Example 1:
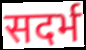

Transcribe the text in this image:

सदर्भ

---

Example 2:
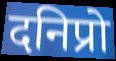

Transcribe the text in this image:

दनिप्रो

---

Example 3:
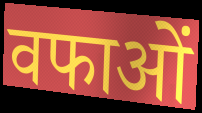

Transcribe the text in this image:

वफाओं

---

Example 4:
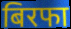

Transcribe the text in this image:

बिरफा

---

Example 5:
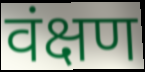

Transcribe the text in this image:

वंक्षण